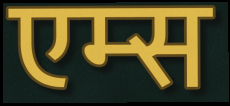
एम्स